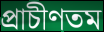
প্রাচীণতম